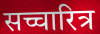
सच्चारित्र